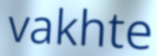
vakhte